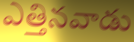
ఎత్తినవాడు